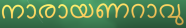
നാരായണറാവു